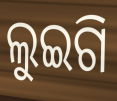
ଲୁଇଗି